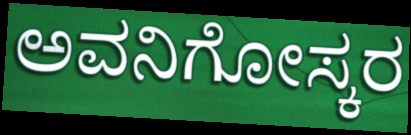
ಅವನಿಗೋಸ್ಕರ